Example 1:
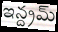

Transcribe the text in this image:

ఇన్ద్రమ్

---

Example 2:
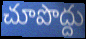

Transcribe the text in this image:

చూపొద్దు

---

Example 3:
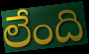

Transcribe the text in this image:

లేంది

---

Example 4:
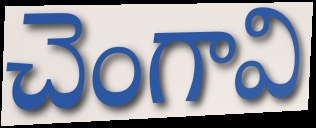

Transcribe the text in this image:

చెంగావి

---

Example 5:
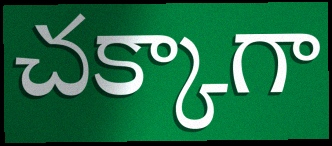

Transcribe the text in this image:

చక్కాగా